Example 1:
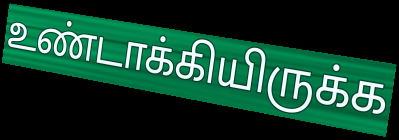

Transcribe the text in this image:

உண்டாக்கியிருக்க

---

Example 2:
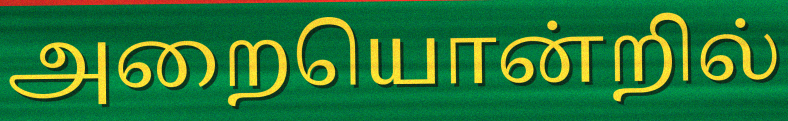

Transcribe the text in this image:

அறையொன்றில்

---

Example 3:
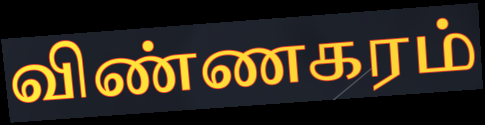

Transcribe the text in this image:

விண்ணகரம்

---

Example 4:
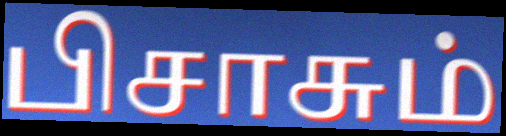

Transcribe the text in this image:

பிசாசும்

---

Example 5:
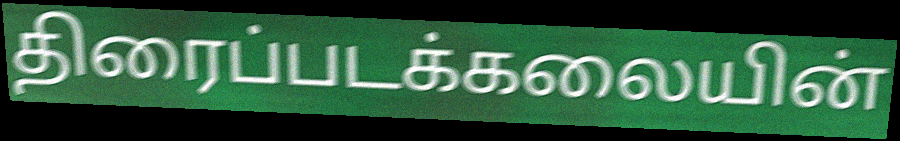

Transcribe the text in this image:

திரைப்படக்கலையின்